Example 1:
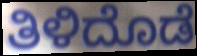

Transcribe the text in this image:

ತಿಳಿದೊಡೆ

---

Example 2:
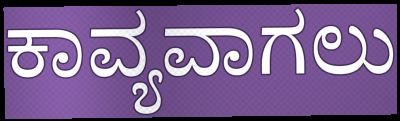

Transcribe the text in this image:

ಕಾವ್ಯವಾಗಲು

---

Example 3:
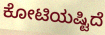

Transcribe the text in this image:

ಕೋಟಿಯಷ್ಟಿದೆ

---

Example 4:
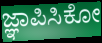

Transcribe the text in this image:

ಜ್ಞಾಪಿಸಿಕೋ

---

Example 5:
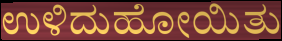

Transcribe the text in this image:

ಉಳಿದುಹೋಯಿತು